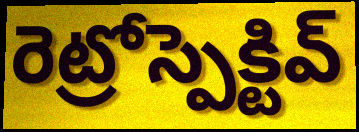
రెట్రోస్పెక్టివ్